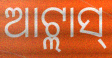
ଆଟ୍ଲାସ୍